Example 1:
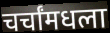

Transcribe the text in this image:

चर्चांमधला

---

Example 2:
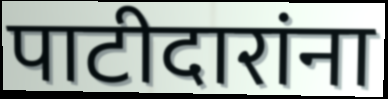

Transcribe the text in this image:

पाटीदारांना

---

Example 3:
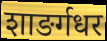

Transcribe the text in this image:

शाङर्गधर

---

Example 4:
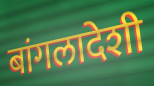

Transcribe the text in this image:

बांगलादेशी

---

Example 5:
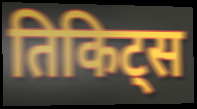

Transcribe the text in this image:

तिकिट्स